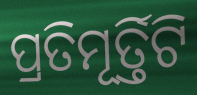
ପ୍ରତିମୂର୍ତ୍ତିଟି